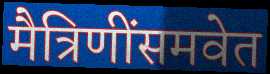
मैत्रिणींसमवेत